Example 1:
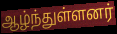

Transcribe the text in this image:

ஆழ்ந்துள்ளனர்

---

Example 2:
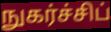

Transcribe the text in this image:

நுகர்ச்சிப்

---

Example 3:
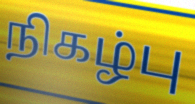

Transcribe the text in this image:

நிகழ்பு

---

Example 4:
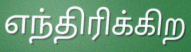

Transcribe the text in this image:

எந்திரிக்கிற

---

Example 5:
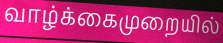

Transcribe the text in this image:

வாழ்க்கைமுறையில்